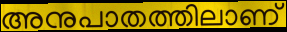
അനുപാതത്തിലാണ്